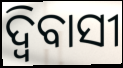
ଦ୍ବିବାସୀ